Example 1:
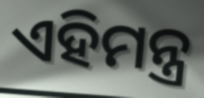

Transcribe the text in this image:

ଏହିମନ୍ତ୍ର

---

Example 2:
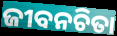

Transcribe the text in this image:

ଜୀବନଚିତା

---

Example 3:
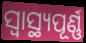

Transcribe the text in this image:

ସ୍ବାସ୍ଥ୍ୟପୂର୍ଣ୍ଣ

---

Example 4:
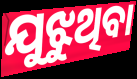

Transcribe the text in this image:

ଯୁଝୁଥିବା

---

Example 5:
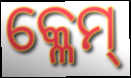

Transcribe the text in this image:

କ୍ଳେମ୍